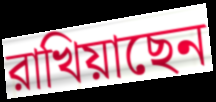
রাখিয়াছেন